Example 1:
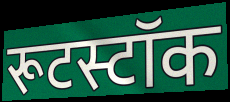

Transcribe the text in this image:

रूटस्टॉक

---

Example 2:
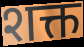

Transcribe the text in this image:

शक्त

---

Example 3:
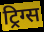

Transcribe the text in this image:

ट्रिग्स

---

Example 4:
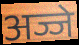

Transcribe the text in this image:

अज्जे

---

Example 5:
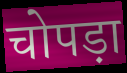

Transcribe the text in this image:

चोपड़ा